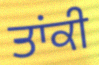
ਤਾਂਕੀ